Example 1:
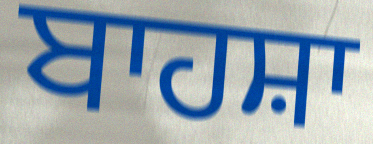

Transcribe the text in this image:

ਬਾਹਸ਼ਾ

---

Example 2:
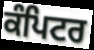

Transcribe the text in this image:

ਕੰਪਿਟਰ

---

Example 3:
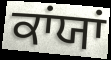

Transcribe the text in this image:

ਕਾਂਯਾਂ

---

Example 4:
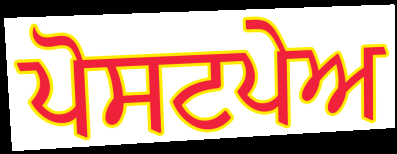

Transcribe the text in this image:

ਪੋਸਟਪੇਅ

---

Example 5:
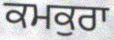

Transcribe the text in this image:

ਕਮਕੁਰਾ